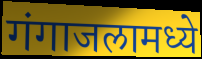
गंगाजलामध्ये